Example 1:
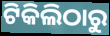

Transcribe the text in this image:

ଟିକିଲିଠାରୁ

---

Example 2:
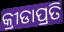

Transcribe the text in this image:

କ୍ରୀଡାପ୍ରତି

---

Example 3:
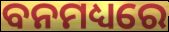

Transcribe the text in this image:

ବନମଧ୍ୟରେ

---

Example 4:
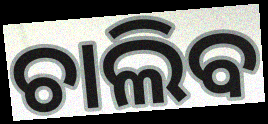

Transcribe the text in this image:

ଚାଲିବ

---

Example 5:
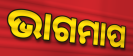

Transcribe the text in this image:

ଭାଗମାପ